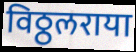
विठ्ठलराया